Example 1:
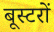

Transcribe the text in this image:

बूस्टरों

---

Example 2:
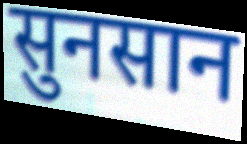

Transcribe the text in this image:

सुनसान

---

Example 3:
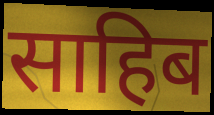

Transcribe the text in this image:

साहिब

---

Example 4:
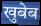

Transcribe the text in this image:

खुबेब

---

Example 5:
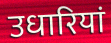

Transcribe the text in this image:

उधारियां